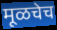
मूळचेच